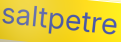
saltpetre